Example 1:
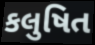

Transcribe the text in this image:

કલુષિત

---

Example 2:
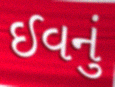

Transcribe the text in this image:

ઈવનું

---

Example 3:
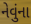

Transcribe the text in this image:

નેવુંના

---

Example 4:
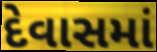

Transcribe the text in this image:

દેવાસમાં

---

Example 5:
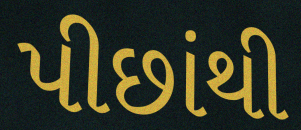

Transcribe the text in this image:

પીછાંથી